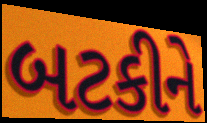
બટકીને